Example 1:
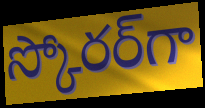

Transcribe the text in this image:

స్కోరర్‌గా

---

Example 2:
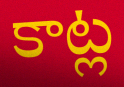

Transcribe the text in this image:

కాట్ల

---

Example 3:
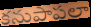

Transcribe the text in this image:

కనుపాపలా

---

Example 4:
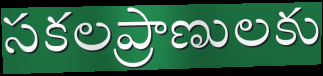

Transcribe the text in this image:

సకలప్రాణులకు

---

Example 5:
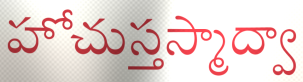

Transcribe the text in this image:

హోచుస్తస్మాద్వా